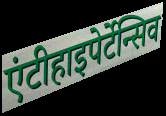
एंटीहाइपेर्टेन्सिव